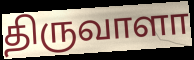
திருவாளா